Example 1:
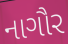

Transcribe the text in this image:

નાગૌર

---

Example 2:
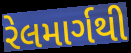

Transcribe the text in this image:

રેલમાર્ગથી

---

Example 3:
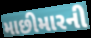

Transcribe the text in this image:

માછીમારની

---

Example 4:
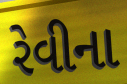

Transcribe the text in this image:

રેવીના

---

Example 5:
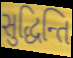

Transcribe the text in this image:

સુદ્ધિન્તિ